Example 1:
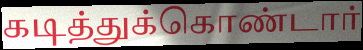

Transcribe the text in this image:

கடித்துக்கொண்டார்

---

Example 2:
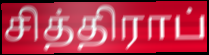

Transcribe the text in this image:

சித்திராப்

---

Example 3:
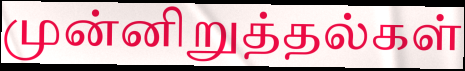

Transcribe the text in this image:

முன்னிறுத்தல்கள்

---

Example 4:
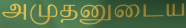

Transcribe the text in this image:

அமுதனுடைய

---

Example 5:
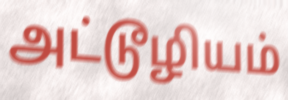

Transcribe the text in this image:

அட்டூழியம்